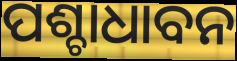
ପଶ୍ଚାଧାବନ